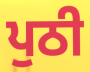
ਪੁਠੀ